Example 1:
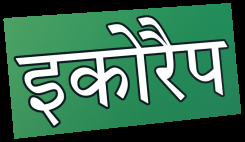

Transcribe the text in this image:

इकोरैप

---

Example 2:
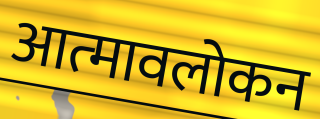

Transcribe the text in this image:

आत्‍मावलोकन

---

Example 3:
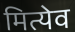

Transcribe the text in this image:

मित्येव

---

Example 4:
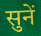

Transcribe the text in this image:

सुनें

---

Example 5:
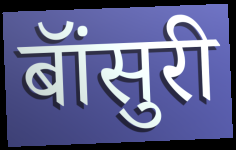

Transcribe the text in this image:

बॉंसुरी